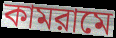
কামরামে